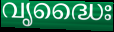
വൃദ്ധൈഃ